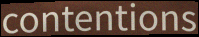
contentions